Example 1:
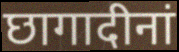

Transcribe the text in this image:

छागादीनां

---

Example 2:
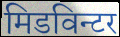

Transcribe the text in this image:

मिडविन्टर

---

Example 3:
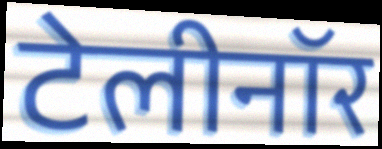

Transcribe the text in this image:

टेलीनॉर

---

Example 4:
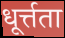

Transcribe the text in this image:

धूर्त्तता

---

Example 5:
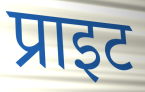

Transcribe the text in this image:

प्राइट